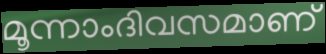
മൂന്നാംദിവസമാണ്